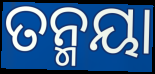
ତନ୍ମୟା